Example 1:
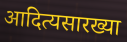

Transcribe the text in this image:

आदित्यसारख्या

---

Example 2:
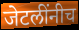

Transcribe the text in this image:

जेटलींनीच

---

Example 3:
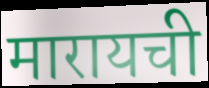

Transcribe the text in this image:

मारायची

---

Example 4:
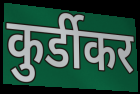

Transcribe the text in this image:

कुर्डीकर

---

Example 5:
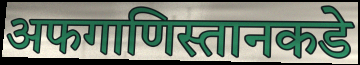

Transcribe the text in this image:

अफगाणिस्तानकडे